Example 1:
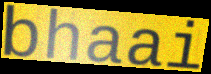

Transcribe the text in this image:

bhaai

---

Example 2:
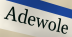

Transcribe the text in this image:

Adewole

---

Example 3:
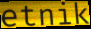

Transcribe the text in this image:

etnik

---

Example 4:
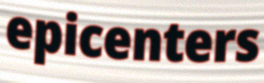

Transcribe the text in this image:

epicenters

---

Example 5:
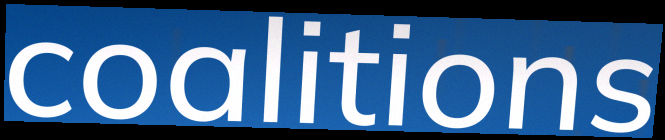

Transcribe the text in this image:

coalitions